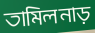
তামিলনাড়